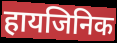
हायजिनिक